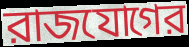
রাজযোগের